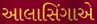
આલાસિંગાએ